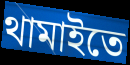
থামাইতে